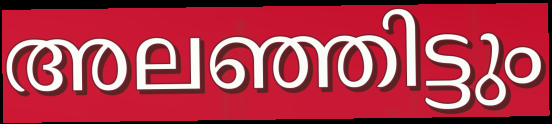
അലഞ്ഞിട്ടും